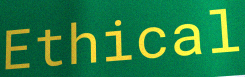
Ethical